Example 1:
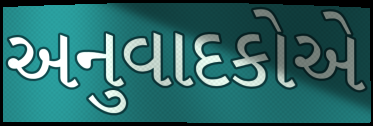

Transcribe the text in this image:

અનુવાદકોએ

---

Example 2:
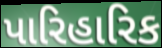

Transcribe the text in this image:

પારિહારિક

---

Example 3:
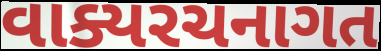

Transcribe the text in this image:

વાક્યરચનાગત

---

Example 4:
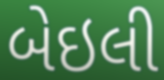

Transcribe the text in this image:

બેઇલી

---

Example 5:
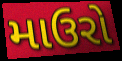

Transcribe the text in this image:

માઉરો